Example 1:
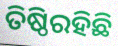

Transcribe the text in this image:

ତିଷ୍ଠିରହିଛି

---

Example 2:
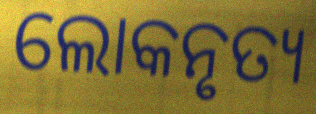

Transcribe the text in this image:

ଲୋକନୃତ୍ଯ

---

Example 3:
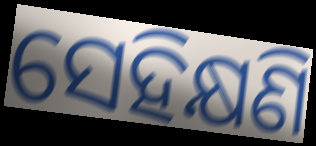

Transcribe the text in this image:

ସେହିକ୍ଷଣି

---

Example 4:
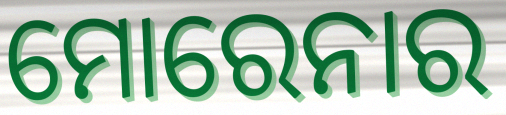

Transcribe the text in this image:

ମୋରେନାର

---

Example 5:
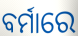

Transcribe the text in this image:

ବର୍ମାରେ